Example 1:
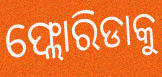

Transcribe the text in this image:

ଫ୍ଲୋରିଡାକୁ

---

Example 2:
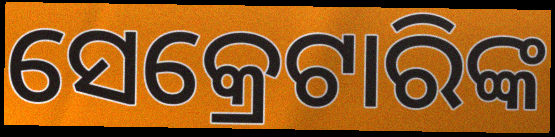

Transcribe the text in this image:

ସେକ୍ରେଟାରିଙ୍କ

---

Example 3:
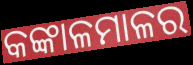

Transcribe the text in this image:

କଙ୍କାଳମାଳର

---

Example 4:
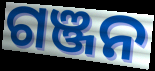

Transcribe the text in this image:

ଗଞ୍ଜନ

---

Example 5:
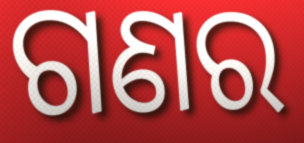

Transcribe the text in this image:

ଗଣର